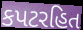
કપટરહિત